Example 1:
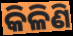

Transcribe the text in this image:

କିଳିଣି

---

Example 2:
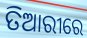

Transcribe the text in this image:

ତିଆରୀରେ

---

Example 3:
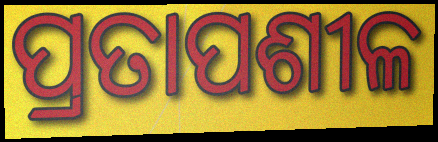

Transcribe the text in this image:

ପ୍ରତାପଶୀଳ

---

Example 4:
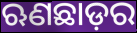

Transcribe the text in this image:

ଋଣଛାଡ଼ର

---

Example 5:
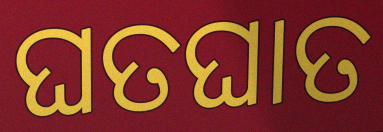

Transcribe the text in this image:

ଘତଘାତ